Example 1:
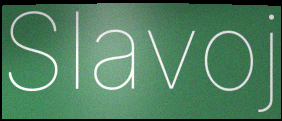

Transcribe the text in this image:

Slavoj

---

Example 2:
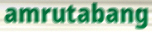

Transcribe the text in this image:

amrutabang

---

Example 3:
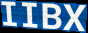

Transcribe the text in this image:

IIBX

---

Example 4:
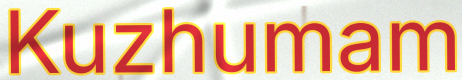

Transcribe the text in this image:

Kuzhumam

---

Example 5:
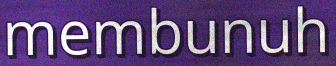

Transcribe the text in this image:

membunuh